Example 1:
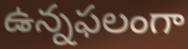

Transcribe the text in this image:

ఉన్నఫలంగా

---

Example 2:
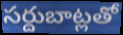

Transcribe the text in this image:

సర్దుబాట్లతో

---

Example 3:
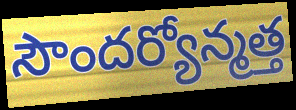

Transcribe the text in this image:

సౌందర్యోన్మత్త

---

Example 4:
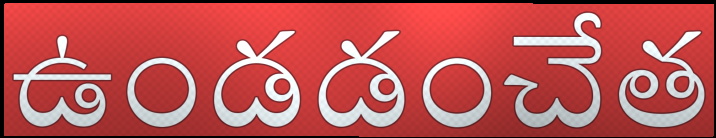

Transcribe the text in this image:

ఉండడంచేత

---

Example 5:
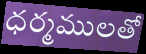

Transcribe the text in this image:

ధర్మములతో